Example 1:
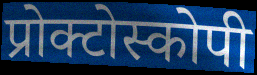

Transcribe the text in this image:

प्रोक्टोस्कोपी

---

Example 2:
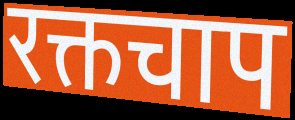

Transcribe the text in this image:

रक्तचाप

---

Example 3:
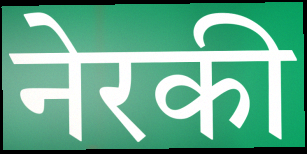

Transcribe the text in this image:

नेरकी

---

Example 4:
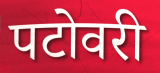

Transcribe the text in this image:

पटोवरी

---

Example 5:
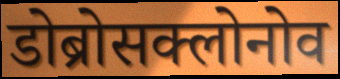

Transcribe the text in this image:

डोब्रोसक्लोनोव